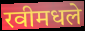
रवीमधले